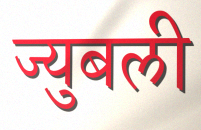
ज्युबली